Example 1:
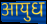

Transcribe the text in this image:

आयुध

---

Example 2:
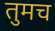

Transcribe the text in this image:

तुमच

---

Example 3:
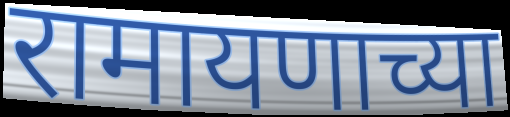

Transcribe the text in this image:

रामायणाच्या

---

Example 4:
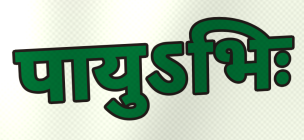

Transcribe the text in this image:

पायुऽभिः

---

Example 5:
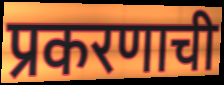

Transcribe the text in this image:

प्रकरणाची